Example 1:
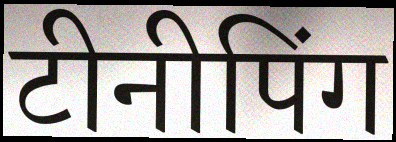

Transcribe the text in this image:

टीनीपिंग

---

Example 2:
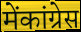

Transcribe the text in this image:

मेंकांग्रेस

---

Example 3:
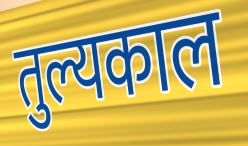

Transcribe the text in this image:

तुल्यकाल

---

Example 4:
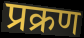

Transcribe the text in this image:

प्रक्रण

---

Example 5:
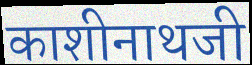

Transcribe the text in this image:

काशीनाथजी